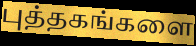
புத்தகங்களை